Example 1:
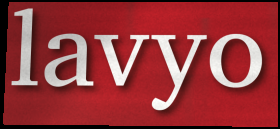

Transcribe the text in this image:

lavyo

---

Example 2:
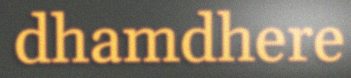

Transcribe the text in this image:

dhamdhere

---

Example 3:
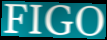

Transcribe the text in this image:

FIGO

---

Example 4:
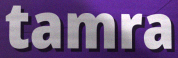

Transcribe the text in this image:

tamra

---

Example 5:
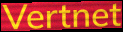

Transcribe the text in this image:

Vertnet